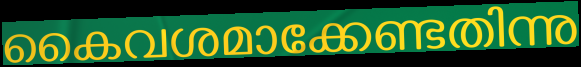
കൈവശമാക്കേണ്ടതിന്നു